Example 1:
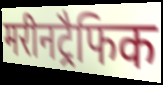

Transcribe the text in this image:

मरीनट्रैफिक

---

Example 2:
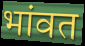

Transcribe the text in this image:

भांवत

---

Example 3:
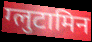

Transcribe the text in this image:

ग्लुटामिन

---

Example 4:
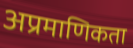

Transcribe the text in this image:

अप्रमाणिकता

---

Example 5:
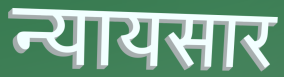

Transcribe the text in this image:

न्यायसार